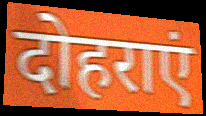
दोहराएं